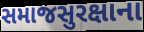
સમાજસુરક્ષાના